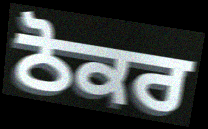
ਠੋਕਰ